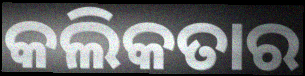
କଲିକତାର